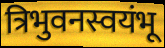
त्रिभुवनस्वयंभू